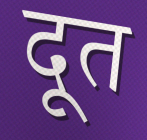
दूत